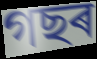
গছৰ